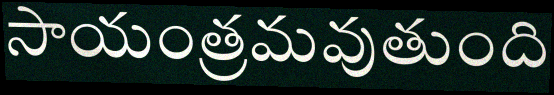
సాయంత్రమవుతుంది